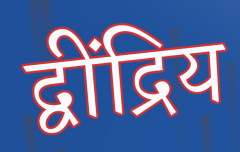
द्वींद्रिय